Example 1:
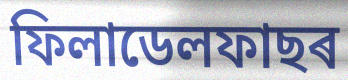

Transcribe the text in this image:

ফিলাডেলফাছৰ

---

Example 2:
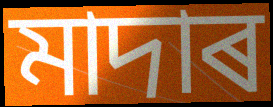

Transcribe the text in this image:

মাদাৰ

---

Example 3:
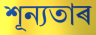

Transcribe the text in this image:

শূন্যতাৰ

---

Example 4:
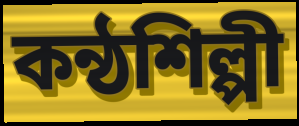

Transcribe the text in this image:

কন্ঠশিল্পী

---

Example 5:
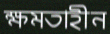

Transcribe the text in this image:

ক্ষমতাহীন